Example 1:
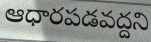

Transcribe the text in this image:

ఆధారపడవద్దని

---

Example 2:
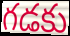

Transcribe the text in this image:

గడకు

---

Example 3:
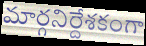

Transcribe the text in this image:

మార్గనిర్దేశకంగా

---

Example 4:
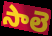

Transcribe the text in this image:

సాలె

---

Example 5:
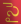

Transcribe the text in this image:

సై